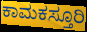
ಕಾಮಕಸ್ತೂರಿ